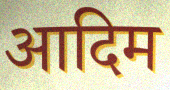
आदिम